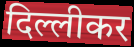
दिल्लीकर